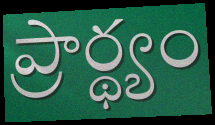
ప్రార్థ్యం